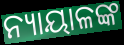
ନ୍ୟାୟାଳଙ୍କ